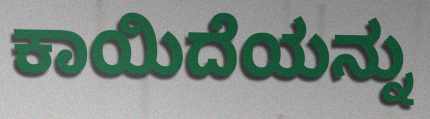
ಕಾಯಿದೆಯನ್ನು